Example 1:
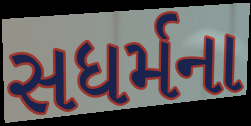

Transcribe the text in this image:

સધર્મના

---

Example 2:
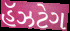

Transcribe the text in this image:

હૅઝટેગ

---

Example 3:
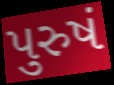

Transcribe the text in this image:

પુરુષં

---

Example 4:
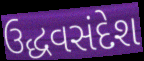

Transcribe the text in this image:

ઉદ્ધવસંદેશ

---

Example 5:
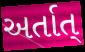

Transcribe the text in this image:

અર્તાત્